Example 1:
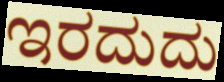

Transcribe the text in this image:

ಇರದುದು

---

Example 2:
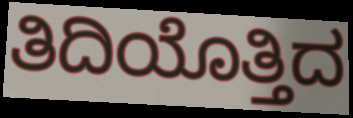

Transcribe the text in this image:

ತಿದಿಯೊತ್ತಿದ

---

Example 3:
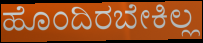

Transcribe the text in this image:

ಹೊಂದಿರಬೇಕಿಲ್ಲ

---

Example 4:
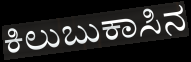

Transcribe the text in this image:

ಕಿಲುಬುಕಾಸಿನ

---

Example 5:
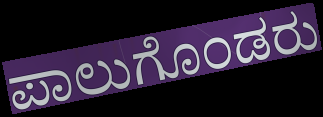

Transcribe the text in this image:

ಪಾಲುಗೊಂಡರು